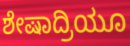
ಶೇಷಾದ್ರಿಯೂ